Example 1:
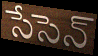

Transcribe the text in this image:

సేసెన్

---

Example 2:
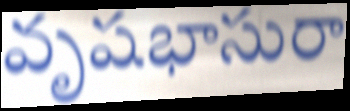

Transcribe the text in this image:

వృషభాసురా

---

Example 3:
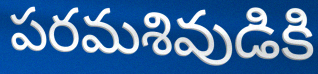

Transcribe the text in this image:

పరమశివుడికి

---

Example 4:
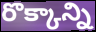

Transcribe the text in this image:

రొక్కాన్ని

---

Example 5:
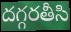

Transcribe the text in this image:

దగ్గరతీసి